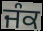
ਜੰਕ